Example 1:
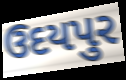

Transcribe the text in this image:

ઉદયપુર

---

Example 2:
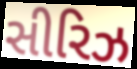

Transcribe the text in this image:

સીરિઝ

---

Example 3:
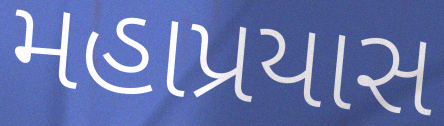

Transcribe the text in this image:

મહાપ્રયાસ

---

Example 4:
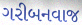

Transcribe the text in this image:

ગરીબનવાજ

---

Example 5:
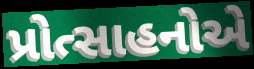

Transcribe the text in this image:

પ્રોત્સાહનોએ